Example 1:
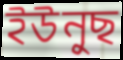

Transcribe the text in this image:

ইউনুছ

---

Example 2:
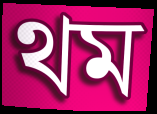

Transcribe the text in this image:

থম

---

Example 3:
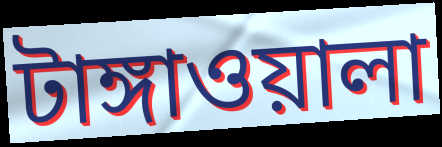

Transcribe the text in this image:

টাঙ্গাওয়ালা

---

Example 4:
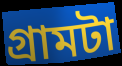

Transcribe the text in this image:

গ্রামটা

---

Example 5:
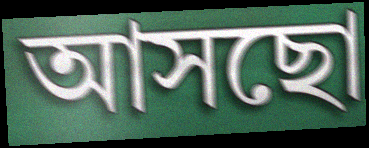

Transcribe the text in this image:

আসছো